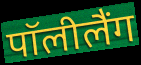
पॉलीलैंग